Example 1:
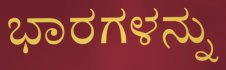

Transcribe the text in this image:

ಭಾರಗಳನ್ನು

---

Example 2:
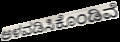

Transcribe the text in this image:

ಅಳವಡಿಸಿಕೊಂಡಿವೆ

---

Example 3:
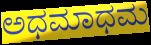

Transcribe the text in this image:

ಅಧಮಾಧಮ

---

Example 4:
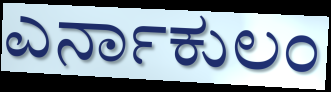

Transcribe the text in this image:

ಎರ್ನಾಕುಲಂ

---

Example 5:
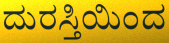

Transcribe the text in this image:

ದುರಸ್ತಿಯಿಂದ